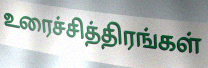
உரைச்சித்திரங்கள்